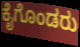
ಕೈಗೊಂಡರು